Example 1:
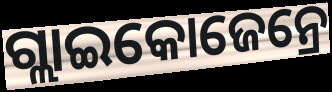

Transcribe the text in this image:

ଗ୍ଲାଇକୋଜେନ୍ରେ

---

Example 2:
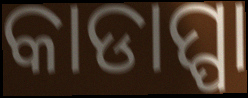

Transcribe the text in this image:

କାଡାପ୍ପା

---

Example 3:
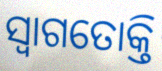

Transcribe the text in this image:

ସ୍ଵାଗତୋକ୍ତି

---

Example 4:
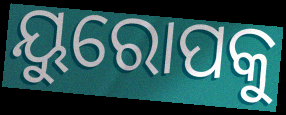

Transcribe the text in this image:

ୟୁରୋପକୁ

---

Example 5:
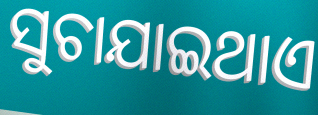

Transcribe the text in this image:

ସୁଚାଯାଇଥାଏ